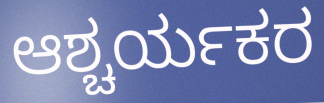
ಆಶ್ಚರ್ಯಕರ